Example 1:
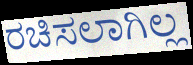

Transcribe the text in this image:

ರಚಿಸಲಾಗಿಲ್ಲ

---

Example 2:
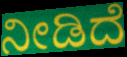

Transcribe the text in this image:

ನೀಡಿದೆ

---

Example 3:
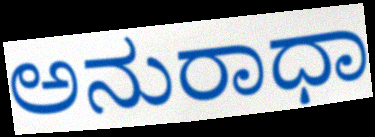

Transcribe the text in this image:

ಅನುರಾಧಾ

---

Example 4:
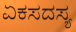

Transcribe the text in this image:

ಏಕಸದಸ್ಯ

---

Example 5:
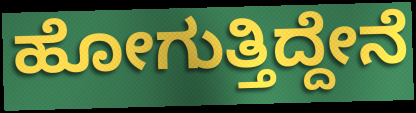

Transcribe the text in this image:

ಹೋಗುತ್ತಿದ್ದೇನೆ